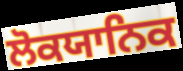
ਲੋਕਯਾਨਿਕ